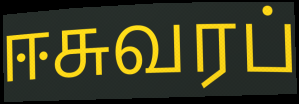
ஈசுவரப்